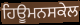
ਹਿਊਮਨਸਕੇਲ